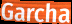
Garcha